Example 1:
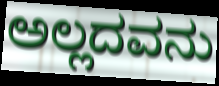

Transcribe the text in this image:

ಅಲ್ಲದವನು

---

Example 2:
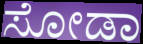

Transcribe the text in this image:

ಸೋಡಾ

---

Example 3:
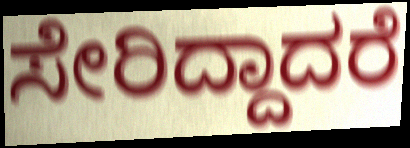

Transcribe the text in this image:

ಸೇರಿದ್ದಾದರೆ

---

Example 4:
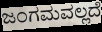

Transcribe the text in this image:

ಜಂಗಮವಲ್ಲದೆ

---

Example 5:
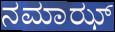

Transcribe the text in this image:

ನಮಾಝ್